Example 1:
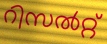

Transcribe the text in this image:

റിസൽറ്റ്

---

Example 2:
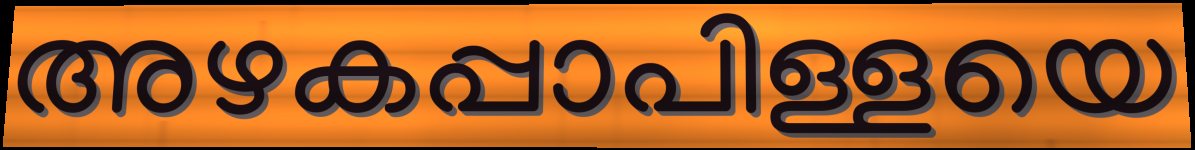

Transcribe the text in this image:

അഴകപ്പാപിള്ളയെ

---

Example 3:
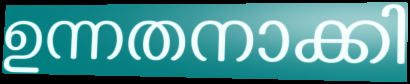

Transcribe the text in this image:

ഉന്നതനാക്കി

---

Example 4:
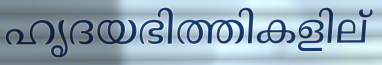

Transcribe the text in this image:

ഹൃദയഭിത്തികളില്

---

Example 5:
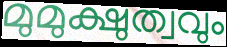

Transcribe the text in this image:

മുമുക്ഷുത്വവും